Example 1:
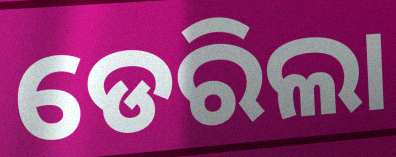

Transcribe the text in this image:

ଡେରିଲା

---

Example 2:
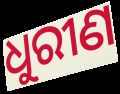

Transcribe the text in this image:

ଧୁରୀଣ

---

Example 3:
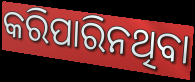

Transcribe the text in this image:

କରିପାରିନଥିବା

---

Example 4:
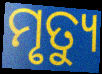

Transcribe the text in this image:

ମୃତ୍ୟୁ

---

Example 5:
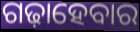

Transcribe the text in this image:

ଗଢ଼ାହେବାର